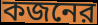
কজনের